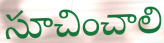
సూచించాలి